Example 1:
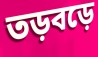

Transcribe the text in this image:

তড়বড়ে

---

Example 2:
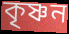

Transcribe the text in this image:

কৃষ্ণন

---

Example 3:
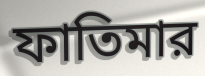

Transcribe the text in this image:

ফাতিমার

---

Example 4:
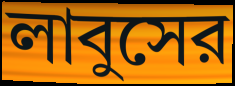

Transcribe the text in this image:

লাবুসের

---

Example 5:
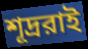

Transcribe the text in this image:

শূদ্ররাই